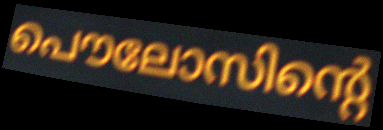
പൌലോസിന്റെ